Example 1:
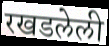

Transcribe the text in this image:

रखडलेली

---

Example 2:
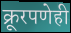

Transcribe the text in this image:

क्रूरपणेही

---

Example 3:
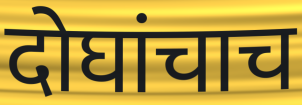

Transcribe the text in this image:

दोघांचाच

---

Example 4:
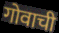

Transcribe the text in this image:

गोवाची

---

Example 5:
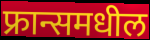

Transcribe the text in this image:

फ्रान्समधील